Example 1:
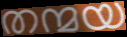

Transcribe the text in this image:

തന്മയ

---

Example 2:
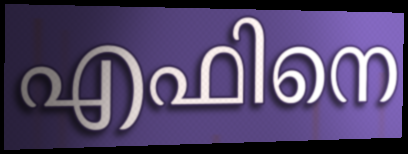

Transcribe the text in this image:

എഫിനെ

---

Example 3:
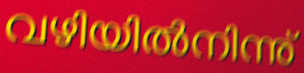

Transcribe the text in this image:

വഴിയിൽനിന്നു്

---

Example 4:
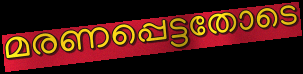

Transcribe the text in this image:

മരണപ്പെട്ടതോടെ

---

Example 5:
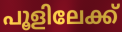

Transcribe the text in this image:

പൂളിലേക്ക്